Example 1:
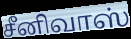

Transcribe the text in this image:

சீனிவாஸ்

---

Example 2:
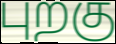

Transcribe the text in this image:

புறகு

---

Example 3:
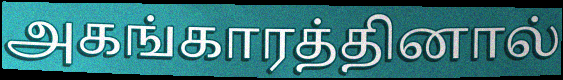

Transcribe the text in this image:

அகங்காரத்தினால்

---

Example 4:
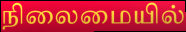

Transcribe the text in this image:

நிலைமையில்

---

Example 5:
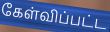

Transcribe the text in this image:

கேள்விப்பட்ட